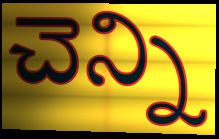
చెన్ని